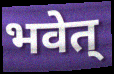
भवेत्